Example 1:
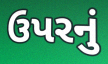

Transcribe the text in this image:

ઉપરનું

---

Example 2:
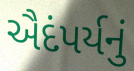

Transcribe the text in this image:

ઐદંપર્યનું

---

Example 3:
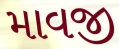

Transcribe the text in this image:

માવજી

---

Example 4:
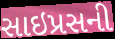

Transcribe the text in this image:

સાઇપ્રસની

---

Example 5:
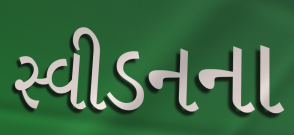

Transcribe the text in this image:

સ્વીડનના